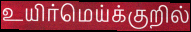
உயிர்மெய்க்குறில்